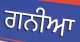
ਗਨੀਆ